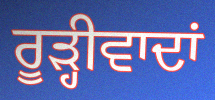
ਰੂੜ੍ਹੀਵਾਦਾਂ